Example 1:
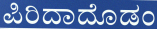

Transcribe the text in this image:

ಪಿರಿದಾದೊಡಂ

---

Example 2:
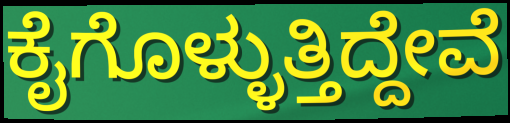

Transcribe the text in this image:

ಕೈಗೊಳ್ಳುತ್ತಿದ್ದೇವೆ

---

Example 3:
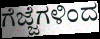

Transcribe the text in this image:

ಗೆಜ್ಜೆಗಳಿಂದ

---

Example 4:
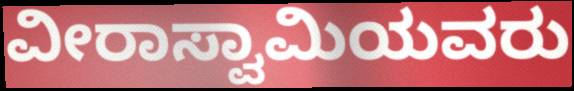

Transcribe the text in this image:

ವೀರಾಸ್ವಾಮಿಯವರು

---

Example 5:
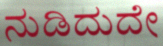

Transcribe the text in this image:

ನುಡಿದುದೇ